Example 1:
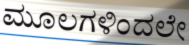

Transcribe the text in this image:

ಮೂಲಗಳಿಂದಲೇ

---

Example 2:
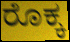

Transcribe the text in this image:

ರೊಕ್ಕ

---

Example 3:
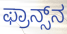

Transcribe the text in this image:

ಫ್ರಾನ್ಸ್‌ನ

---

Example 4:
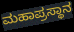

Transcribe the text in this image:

ಮಹಾಪ್ರಸ್ಥಾನ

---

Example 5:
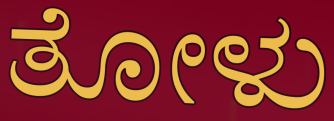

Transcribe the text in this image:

ತೋಳು